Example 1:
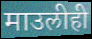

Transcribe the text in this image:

माउलीही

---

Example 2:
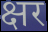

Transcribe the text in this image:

क्षर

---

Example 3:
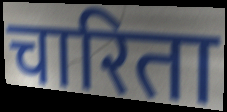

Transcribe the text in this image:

चारिता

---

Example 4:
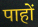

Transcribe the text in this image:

पाहों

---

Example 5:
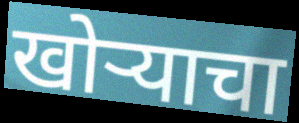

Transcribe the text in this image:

खोर्‍याचा